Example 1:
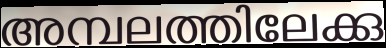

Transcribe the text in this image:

അമ്പലത്തിലേക്കു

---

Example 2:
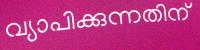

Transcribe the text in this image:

വ്യാപിക്കുന്നതിന്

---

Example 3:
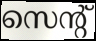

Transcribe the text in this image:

സെന്റ്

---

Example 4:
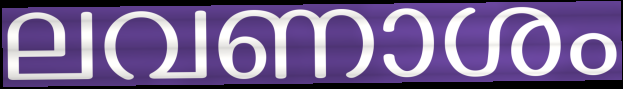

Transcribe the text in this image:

ലവണാശം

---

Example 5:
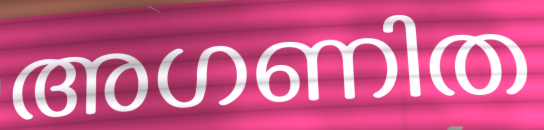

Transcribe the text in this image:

അഗണിത